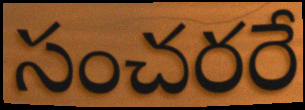
సంచరరే